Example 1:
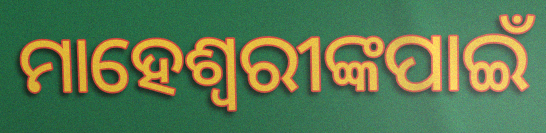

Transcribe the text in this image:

ମାହେଶ୍ୱରୀଙ୍କପାଇଁ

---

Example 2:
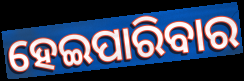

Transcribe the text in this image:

ହେଇପାରିବାର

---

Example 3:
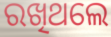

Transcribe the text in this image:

ରଖିଥଲେ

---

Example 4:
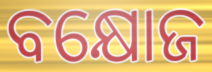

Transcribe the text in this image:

ବକ୍ଷୋଜ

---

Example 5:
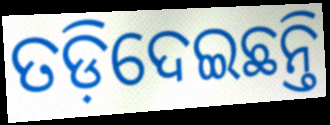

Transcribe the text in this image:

ତଡ଼ିଦେଇଛନ୍ତି